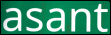
asant